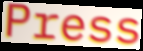
Press